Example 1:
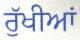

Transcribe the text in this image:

ਰੁੱਖੀਆਂ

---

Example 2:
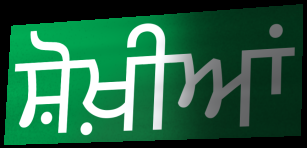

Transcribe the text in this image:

ਸ਼ੋਖ਼ੀਆਂ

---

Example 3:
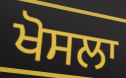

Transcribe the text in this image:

ਖੋਸਲਾ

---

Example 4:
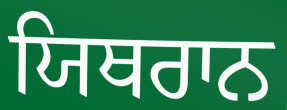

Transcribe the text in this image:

ਯਿਥਰਾਨ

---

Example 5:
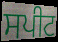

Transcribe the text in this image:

ਸਪੀਟ